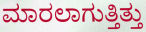
ಮಾರಲಾಗುತ್ತಿತ್ತು